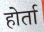
होर्ता